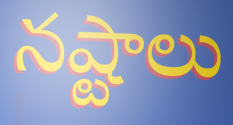
నష్టాలు